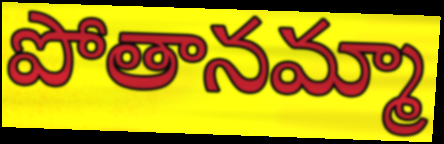
పోతానమ్మా